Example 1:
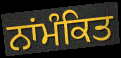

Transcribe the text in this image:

ਨਾਂਮੰਕਿਤ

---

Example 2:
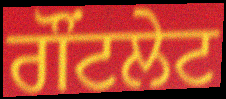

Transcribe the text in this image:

ਗੌਂਟਲੇਟ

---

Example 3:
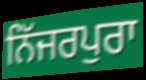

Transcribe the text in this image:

ਨਿੱਜਰਪੁਰਾ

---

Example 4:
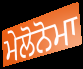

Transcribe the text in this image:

ਮੇਲੋਨੋਮਾ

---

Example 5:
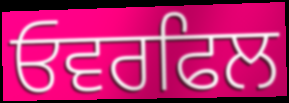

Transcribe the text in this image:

ਓਵਰਫਿਲ